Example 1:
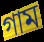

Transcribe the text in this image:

গাম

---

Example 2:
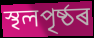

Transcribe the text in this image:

স্থলপৃষ্ঠৰ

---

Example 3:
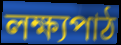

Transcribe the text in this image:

লক্ষ্যপাঠ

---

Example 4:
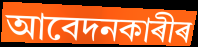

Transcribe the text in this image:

আবেদনকাৰীৰ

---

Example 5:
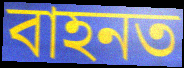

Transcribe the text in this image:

বাহনত